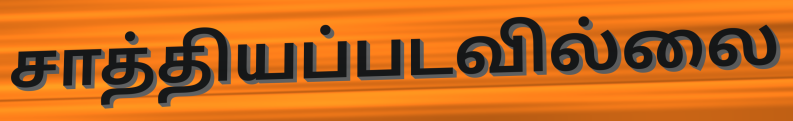
சாத்தியப்படவில்லை